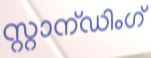
സ്റ്റാന്ഡിംഗ്